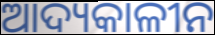
ଆଦ୍ୟକାଳୀନ